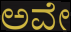
ಅವೇ